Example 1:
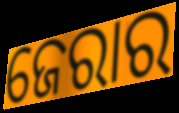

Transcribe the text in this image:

ଜେରାର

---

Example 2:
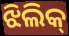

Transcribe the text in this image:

ଝିଲିକ୍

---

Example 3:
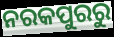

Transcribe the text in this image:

ନରକପୁରରୁ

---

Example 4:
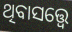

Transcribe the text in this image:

ଥିବାସତ୍ତ୍ଵେ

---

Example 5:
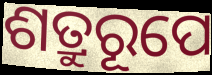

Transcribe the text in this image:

ଶତ୍ରୁରୂପେ